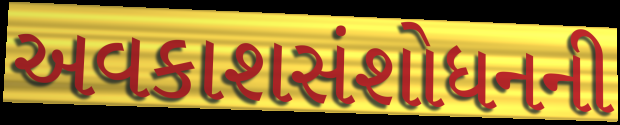
અવકાશસંશોધનની